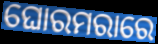
ଘୋରମରାରେ